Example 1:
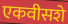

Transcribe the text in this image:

एकवीसशे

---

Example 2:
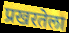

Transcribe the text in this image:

प्रखरतेला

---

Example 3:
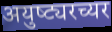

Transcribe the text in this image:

अयुष्ट्यरच्यर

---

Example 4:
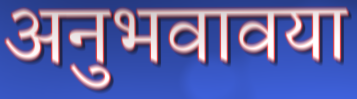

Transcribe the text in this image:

अनुभवावया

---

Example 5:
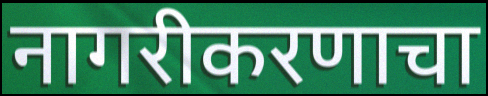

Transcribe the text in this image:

नागरीकरणाचा